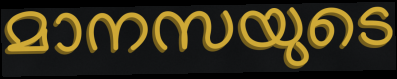
മാനസയുടെ